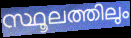
സ്ഥൂലത്തിലും